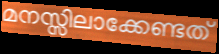
മനസ്സിലാക്കേണ്ടത്